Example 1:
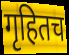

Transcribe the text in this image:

गृहितच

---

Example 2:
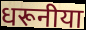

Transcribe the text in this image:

धरूनीया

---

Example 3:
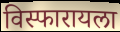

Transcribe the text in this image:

विस्फारायला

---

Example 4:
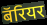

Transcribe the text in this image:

बॅरियर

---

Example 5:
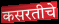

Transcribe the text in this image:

कसरतीचे